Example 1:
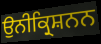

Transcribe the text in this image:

ਉਨੀਕ੍ਰਿਸ਼ਨਨ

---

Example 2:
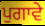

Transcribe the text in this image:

ਪੁਗਾਵੇ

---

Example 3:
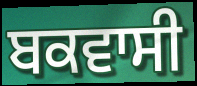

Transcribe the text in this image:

ਬਕਵਾਸੀ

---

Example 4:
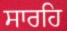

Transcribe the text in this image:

ਸਾਰਹਿ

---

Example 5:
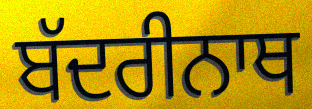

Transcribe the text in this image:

ਬੱਦਰੀਨਾਥ